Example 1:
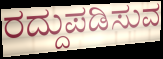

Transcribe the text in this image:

ರದ್ದುಪಡಿಸುವ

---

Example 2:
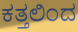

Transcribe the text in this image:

ಕತ್ತಲಿಂದ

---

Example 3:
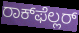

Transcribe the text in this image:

ರಾಕ್‌ಫೆಲ್ಲರ್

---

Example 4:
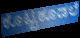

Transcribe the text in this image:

ಕೊಟ್ಟಕೂಡಲೆ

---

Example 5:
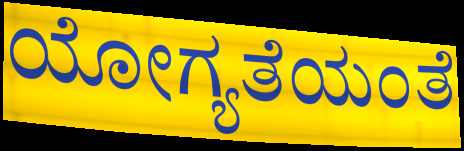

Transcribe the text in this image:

ಯೋಗ್ಯತೆಯಂತೆ